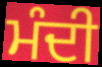
ਮੰਦੀ